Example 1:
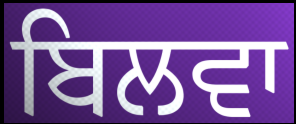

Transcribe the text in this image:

ਬਿਲਵਾ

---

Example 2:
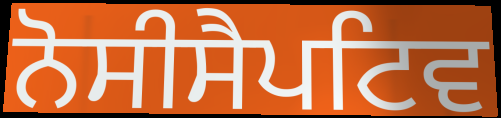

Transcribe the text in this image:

ਨੋਸੀਸੈਪਟਿਵ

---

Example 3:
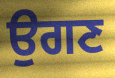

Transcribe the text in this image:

ਉਗਣ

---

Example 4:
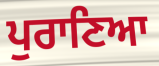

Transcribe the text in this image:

ਪੁਰਾਣਿਆ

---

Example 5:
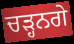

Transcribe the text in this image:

ਚੜ੍ਹਨਗੇ